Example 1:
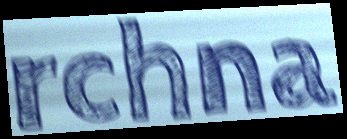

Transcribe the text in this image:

rchna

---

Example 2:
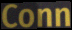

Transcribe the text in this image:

Conn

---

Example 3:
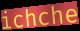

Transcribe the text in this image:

ichche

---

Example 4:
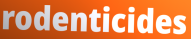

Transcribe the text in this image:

rodenticides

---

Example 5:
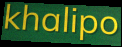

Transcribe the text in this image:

khalipo